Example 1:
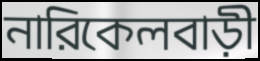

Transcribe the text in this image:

নারিকেলবাড়ী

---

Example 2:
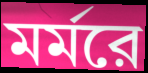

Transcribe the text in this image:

মর্মরে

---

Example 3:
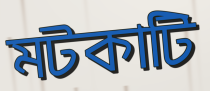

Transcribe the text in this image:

মটকাটি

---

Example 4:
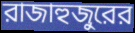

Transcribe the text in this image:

রাজাহুজুরের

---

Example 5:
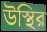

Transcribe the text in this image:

উস্থির